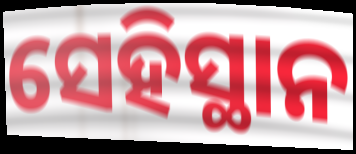
ସେହିସ୍ଥାନ